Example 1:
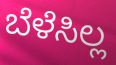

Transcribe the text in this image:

ಬೆಳೆಸಿಲ್ಲ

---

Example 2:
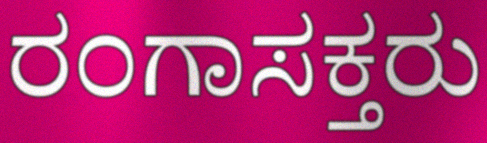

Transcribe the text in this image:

ರಂಗಾಸಕ್ತರು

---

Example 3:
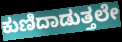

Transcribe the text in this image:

ಕುಣಿದಾಡುತ್ತಲೇ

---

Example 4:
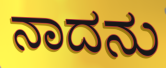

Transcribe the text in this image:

ನಾದನು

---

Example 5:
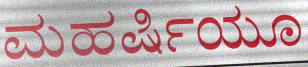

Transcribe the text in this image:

ಮಹರ್ಷಿಯೂ